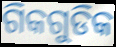
ଗିକଗୁଡିକ